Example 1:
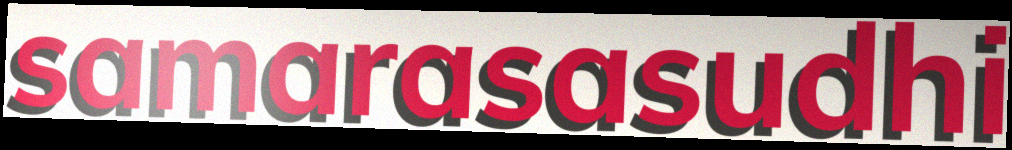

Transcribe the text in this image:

samarasasudhi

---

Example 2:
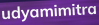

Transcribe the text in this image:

udyamimitra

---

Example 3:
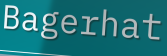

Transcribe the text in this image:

Bagerhat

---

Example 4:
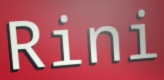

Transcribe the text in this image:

Rini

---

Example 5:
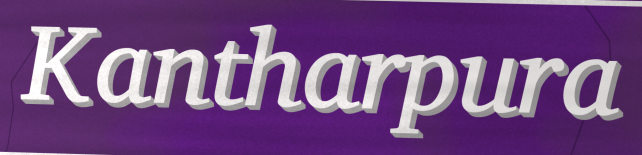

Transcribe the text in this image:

Kantharpura